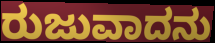
ರುಜುವಾದನು